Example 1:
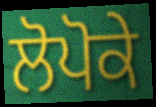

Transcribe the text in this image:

ਲੋਪੋਕੇ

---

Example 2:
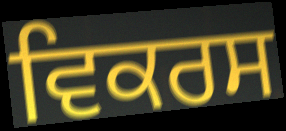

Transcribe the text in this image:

ਵਿਕਰਸ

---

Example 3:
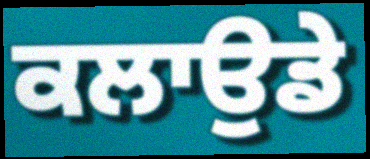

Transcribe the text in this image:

ਕਲਾਉਡੇ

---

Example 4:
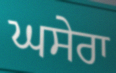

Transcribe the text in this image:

ਘਸੇਰਾ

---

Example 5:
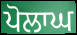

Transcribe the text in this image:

ਪੋਲਾਘ